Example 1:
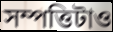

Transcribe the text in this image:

সম্পত্তিটাও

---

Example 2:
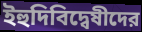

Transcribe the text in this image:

ইহুদিবিদ্বেষীদের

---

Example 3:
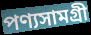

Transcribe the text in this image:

পণ্যসামগ্রী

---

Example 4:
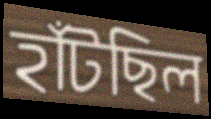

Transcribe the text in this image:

হাঁটছিল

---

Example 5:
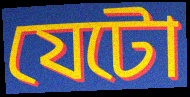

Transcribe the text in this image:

যেটো